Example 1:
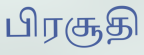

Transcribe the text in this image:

பிரசூதி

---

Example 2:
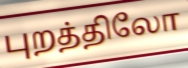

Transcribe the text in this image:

புறத்திலோ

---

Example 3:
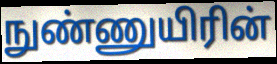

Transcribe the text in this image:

நுண்ணுயிரின்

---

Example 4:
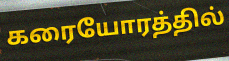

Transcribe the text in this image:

கரையோரத்தில்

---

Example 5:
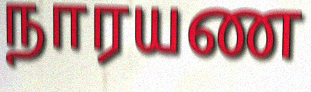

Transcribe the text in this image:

நாரயண